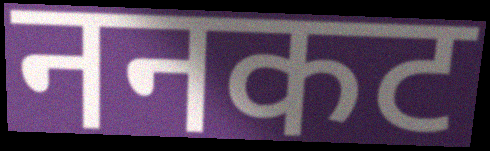
ननकट